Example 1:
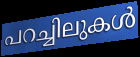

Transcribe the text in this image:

പറച്ചിലുകൾ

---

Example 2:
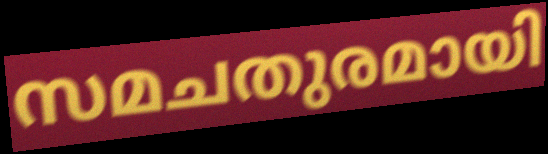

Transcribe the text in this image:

സമചതുരമായി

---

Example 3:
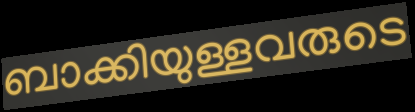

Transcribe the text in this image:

ബാക്കിയുള്ളവരുടെ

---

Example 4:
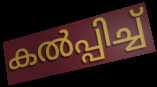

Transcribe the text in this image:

കൽപ്പിച്ച്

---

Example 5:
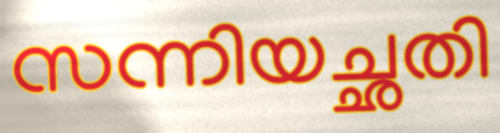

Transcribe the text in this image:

സന്നിയച്ഛതി